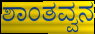
ಶಾಂತವ್ವನ